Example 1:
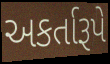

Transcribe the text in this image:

અકર્તારૂપે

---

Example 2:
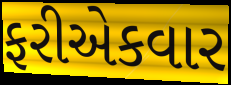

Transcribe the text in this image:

ફરીએકવાર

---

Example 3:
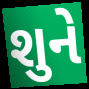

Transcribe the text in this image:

શુને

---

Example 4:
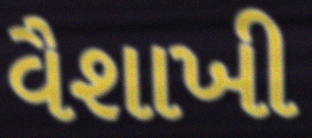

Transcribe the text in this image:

વૈશાખી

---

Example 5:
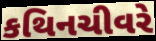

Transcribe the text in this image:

કથિનચીવરે